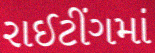
રાઈટીંગમાં